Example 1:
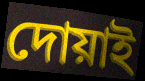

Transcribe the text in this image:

দোয়াই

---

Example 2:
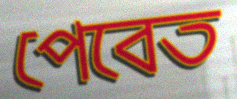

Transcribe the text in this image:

পেবেত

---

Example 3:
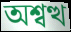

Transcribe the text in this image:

অশ্বত্থ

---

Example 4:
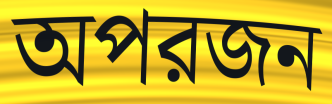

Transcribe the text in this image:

অপরজন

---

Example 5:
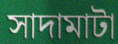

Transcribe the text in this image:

সাদামাটা